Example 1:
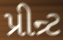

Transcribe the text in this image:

પ્રીન્ર્ટ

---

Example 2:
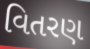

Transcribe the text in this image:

વિતરણ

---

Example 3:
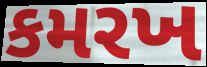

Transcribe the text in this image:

કમરખ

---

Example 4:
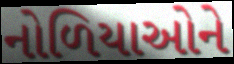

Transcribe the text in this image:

નોળિયાઓને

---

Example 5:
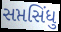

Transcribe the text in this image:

સપ્તસિંધુ